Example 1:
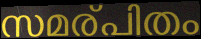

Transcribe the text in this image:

സമര്പിതം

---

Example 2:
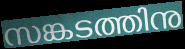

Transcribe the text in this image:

സങ്കടത്തിനു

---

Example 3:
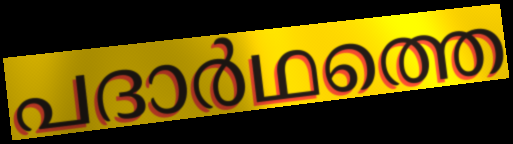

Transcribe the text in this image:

പദാർഥത്തെ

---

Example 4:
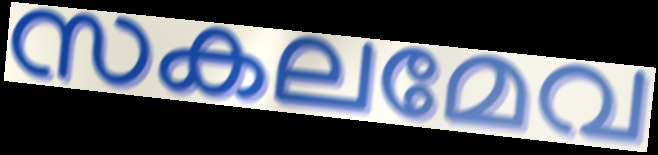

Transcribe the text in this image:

സകലമേവ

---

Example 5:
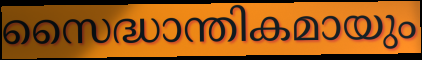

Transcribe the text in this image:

സൈദ്ധാന്തികമായും